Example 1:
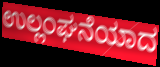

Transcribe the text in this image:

ಉಲ್ಲಂಘನೆಯಾದ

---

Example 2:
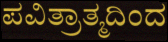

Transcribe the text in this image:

ಪವಿತ್ರಾತ್ಮದಿಂದ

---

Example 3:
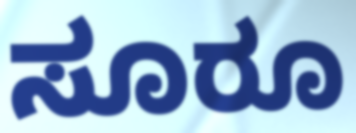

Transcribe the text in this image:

ಸೂರೂ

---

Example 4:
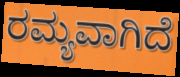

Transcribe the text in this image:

ರಮ್ಯವಾಗಿದೆ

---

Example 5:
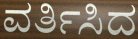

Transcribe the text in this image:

ವರ್ತಿಸಿದ